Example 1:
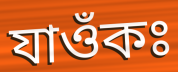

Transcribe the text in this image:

যাওঁকঃ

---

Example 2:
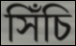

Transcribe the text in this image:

সিঁচি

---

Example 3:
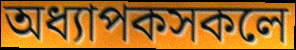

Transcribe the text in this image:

অধ্যাপকসকলে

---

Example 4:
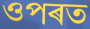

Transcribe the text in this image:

ওপৰত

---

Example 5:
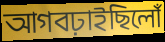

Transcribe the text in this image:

আগবঢ়াইছিলোঁ